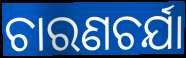
ଚାରଣଚର୍ଯା